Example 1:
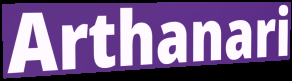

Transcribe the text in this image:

Arthanari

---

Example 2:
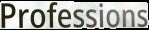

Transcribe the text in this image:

Professions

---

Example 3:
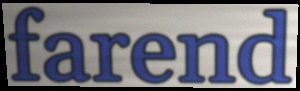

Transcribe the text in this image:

farend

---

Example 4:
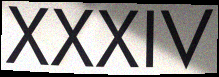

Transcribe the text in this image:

XXXIV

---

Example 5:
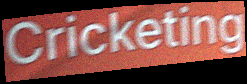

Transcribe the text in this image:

Cricketing